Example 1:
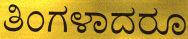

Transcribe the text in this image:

ತಿಂಗಳಾದರೂ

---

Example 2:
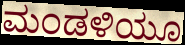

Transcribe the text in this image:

ಮಂಡಳಿಯೂ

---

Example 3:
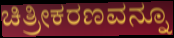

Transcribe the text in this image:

ಚಿತ್ರೀಕರಣವನ್ನೂ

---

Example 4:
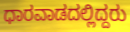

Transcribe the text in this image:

ಧಾರವಾಡದಲ್ಲಿದ್ದರು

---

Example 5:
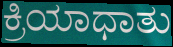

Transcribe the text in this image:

ಕ್ರಿಯಾಧಾತು